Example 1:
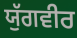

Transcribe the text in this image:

ਯੁੱਗਵੀਰ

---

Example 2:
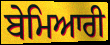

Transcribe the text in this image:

ਬੇਮਿਆਰੀ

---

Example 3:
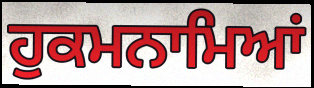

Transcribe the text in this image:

ਹੁਕਮਨਾਮਿਆਂ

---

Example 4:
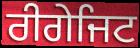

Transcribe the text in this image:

ਰੀਗੇਜਿਟ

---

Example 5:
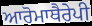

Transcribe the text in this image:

ਆਰੋਮਾਥੈਰੇਪੀ